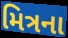
મિત્રના